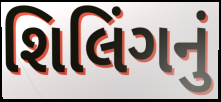
શિલિંગનું